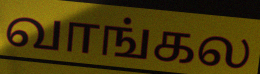
வாங்கல